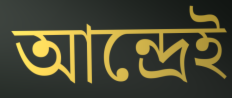
আন্দ্রেই